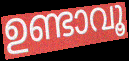
ഉണ്ടാവൂ